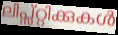
ലിപ്സ്റ്റിക്കുകൾ